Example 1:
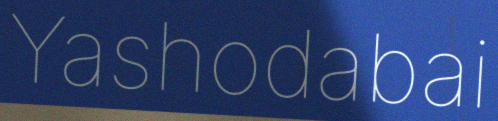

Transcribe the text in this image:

Yashodabai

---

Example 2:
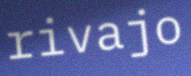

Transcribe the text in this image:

rivajo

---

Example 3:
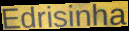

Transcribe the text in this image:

Edrisinha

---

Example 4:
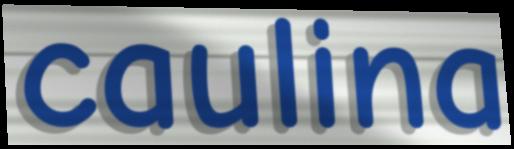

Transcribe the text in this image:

caulina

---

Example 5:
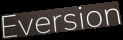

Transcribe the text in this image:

Eversion